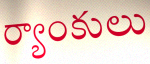
ర్యాంకులు